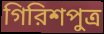
গিরিশপুত্র